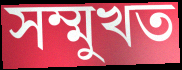
সম্মুখত